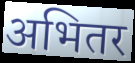
अभितर